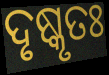
ଦୃଷ୍କୃତଃ